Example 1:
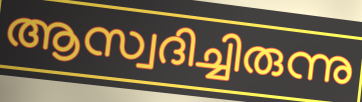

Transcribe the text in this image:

ആസ്വദിച്ചിരുന്നു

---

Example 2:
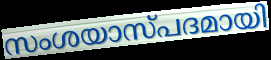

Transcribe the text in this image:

സംശയാസ്പദമായി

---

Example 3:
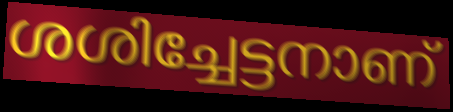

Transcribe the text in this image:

ശശിച്ചേട്ടനാണ്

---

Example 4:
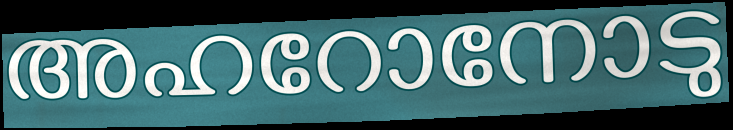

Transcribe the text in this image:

അഹറോനോടു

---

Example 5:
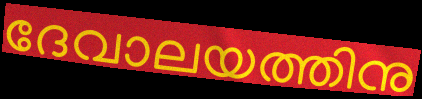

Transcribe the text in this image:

ദേവാലയത്തിനു